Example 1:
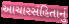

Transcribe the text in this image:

આચારસંહિતાનું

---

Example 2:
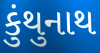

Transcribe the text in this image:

કુંથુનાથ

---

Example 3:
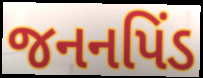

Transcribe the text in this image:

જનનપિંડ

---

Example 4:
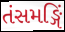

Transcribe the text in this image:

તંસમઙ્ગિં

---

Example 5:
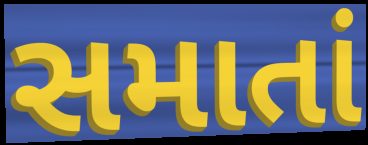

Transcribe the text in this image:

સમાતાં